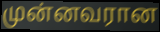
முன்னவரான